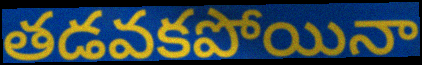
తడవకపోయినా